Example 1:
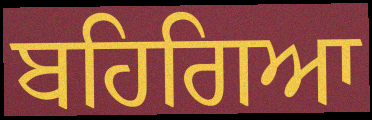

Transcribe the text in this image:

ਬਹਿਗਿਆ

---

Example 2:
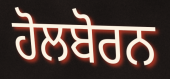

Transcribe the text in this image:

ਹੋਲਬੋਰਨ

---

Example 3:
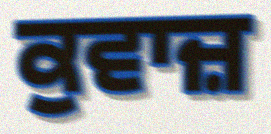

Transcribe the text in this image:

ਕੁਵਾਜ਼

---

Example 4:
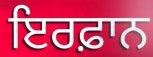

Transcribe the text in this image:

ਇਰਫ਼ਾਨ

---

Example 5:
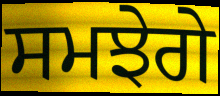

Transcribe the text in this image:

ਸਮਝੇਗੇ